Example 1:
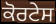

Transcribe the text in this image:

ਕੋਰਟੇਸ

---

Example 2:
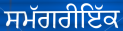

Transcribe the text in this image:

ਸਮੱਗਰੀਇੱਕ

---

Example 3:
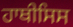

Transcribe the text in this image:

ਹਾਥੀਸਿਸ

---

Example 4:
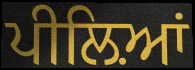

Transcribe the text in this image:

ਪੀਲ਼ਿਆਂ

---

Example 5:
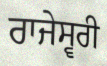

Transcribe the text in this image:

ਰਾਜੇਸ੍ਵਰੀ